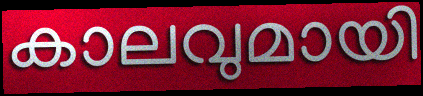
കാലവുമായി